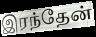
இரந்தேன்